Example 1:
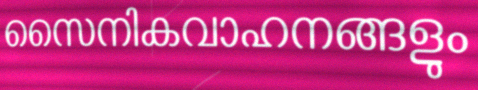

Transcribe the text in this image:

സൈനികവാഹനങ്ങളും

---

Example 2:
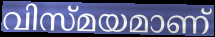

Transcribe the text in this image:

വിസ്മയമാണ്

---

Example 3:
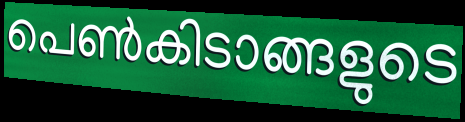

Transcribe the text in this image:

പെൺകിടാങ്ങളുടെ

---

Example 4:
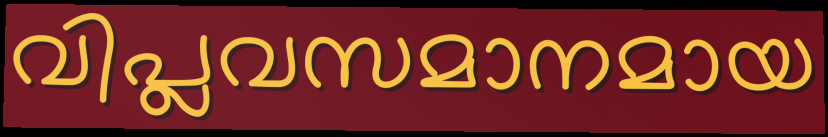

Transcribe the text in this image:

വിപ്ലവസമാനമായ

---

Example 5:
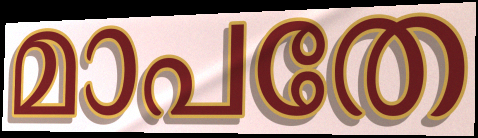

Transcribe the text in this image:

മാപതേ